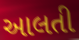
આલતી